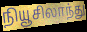
நியூசிலாந்து